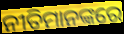
ନୀତିମାନଙ୍କରେ